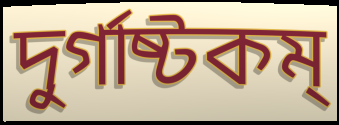
দুর্গাষ্টকম্